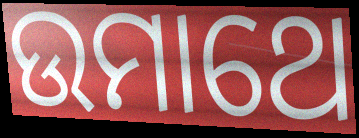
ଉମାଥେ